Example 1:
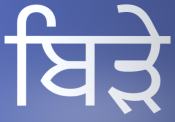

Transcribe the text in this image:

ਬਿੜੇ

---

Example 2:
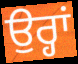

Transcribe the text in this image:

ਉਰ੍ਹਾਂ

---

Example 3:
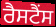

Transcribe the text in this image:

ਰੈਸਟੈਂਸ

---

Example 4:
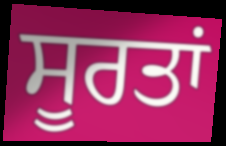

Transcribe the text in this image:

ਸੂਰਤਾਂ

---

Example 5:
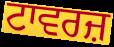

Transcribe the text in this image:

ਟਾਵਰਜ਼